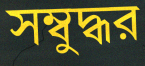
সম্বুদ্ধর